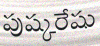
పుష్కరేషు